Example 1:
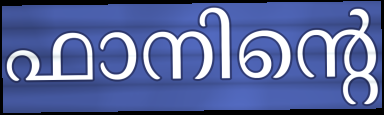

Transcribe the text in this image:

ഫാനിന്റെ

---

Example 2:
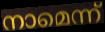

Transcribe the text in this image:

നാമെന്ന്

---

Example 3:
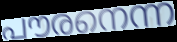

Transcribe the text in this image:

പൗരനെന്ന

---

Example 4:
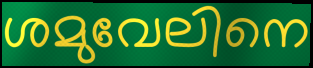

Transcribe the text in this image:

ശമുവേലിനെ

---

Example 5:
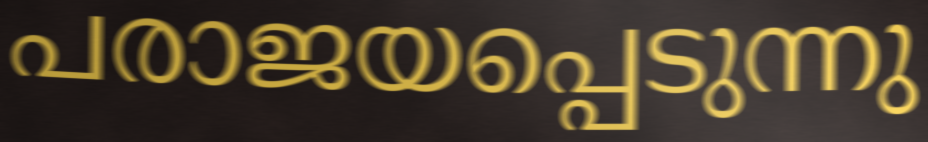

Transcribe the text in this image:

പരാജയപ്പെടുന്നു